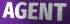
AGENT